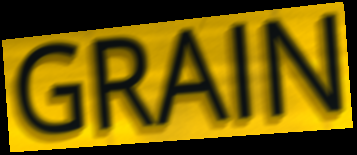
GRAIN